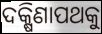
ଦକ୍ଷିଣାପଥକୁ